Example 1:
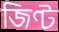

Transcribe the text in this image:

জিণ্ট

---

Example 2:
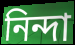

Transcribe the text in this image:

নিন্দা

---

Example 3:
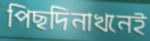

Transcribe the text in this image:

পিছদিনাখনেই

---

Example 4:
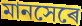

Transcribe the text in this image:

মানসেৰে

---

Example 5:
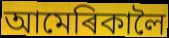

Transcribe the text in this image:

আমেৰিকালৈ